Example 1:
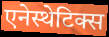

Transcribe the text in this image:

एनेस्थेटिक्स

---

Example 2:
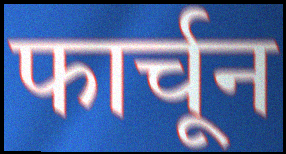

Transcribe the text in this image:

फार्चून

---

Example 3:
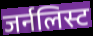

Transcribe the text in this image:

जर्नलिस्ट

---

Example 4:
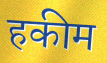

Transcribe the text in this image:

हकीम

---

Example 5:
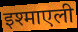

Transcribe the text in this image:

इश्माएली